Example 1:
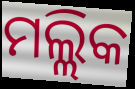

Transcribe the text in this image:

ମଲ୍ଲିକ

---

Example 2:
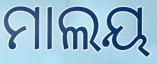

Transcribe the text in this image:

ମାଲୟ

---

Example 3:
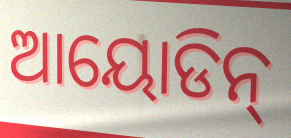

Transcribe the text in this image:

ଆୟୋଡିନ୍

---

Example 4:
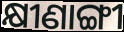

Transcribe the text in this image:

କ୍ଷୀଣାଙ୍ଗୀ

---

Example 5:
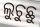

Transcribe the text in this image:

ଲୁଚୁଛୁ